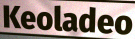
Keoladeo